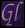
Gl